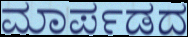
ಮಾರ್ಪಡದ